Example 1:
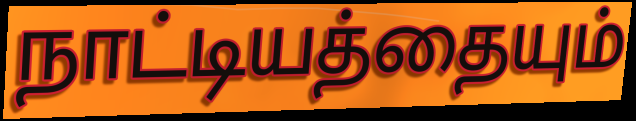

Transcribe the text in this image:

நாட்டியத்தையும்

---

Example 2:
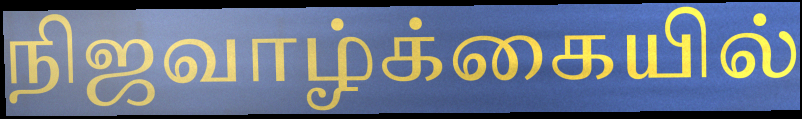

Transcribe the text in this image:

நிஜவாழ்க்கையில்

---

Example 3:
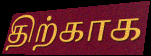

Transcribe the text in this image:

திற்காக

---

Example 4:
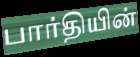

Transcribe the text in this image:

பார்தியின்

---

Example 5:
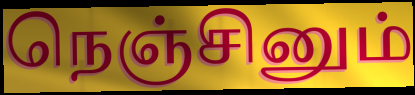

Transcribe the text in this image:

நெஞ்சினும்